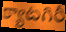
క్యాటగిరీ